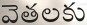
వెతలకు